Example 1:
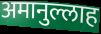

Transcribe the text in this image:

अमानुल्लाह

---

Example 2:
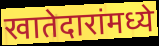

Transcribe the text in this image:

खातेदारांमध्ये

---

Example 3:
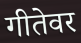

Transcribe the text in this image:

गीतेवर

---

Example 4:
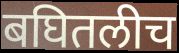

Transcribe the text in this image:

बघितलीच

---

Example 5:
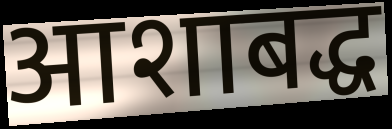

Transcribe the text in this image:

आशाबद्ध